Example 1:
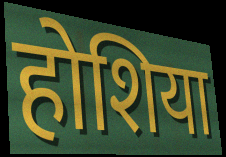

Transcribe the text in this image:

होशिया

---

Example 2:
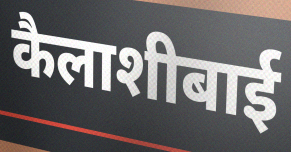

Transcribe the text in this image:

कैलाशीबाई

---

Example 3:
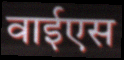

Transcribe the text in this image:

वाईएस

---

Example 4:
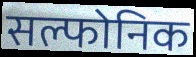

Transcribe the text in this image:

सल्फोनिक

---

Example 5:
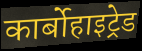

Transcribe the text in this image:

कार्बोहाइट्रेड